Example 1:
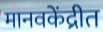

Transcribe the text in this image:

मानवकेंद्रीत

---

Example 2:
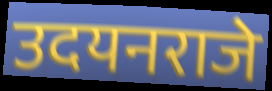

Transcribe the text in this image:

उदयनराजे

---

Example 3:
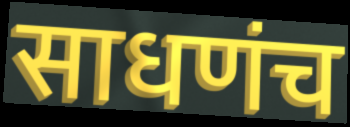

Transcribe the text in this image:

साधणंच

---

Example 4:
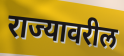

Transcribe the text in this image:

राज्यावरील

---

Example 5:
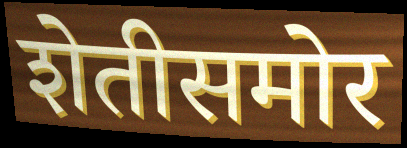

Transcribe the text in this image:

शेतीसमोर